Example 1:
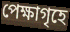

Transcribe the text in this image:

পেক্ষাগৃহে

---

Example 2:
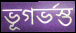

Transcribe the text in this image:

ভূগর্ভস্ত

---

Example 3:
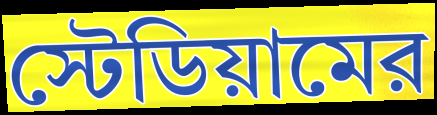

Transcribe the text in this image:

স্টেডিয়ামের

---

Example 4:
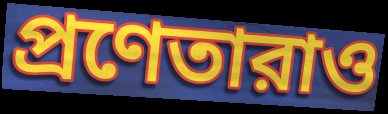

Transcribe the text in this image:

প্রণেতারাও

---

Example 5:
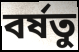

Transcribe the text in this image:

বর্ষতু